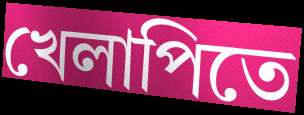
খেলাপিতে